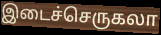
இடைச்செருகலா